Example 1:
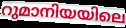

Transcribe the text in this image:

റുമാനിയയിലെ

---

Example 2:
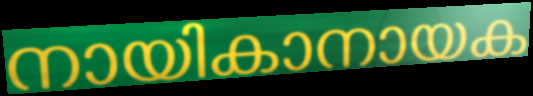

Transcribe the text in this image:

നായികാനായക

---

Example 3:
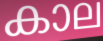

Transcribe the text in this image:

കാല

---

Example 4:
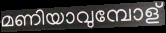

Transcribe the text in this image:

മണിയാവുമ്പോള്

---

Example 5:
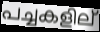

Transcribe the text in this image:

പച്ചകളില്